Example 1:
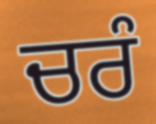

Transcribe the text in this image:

ਚਰੰ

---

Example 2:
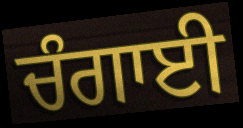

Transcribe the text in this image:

ਚੰਗਾਈ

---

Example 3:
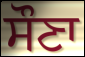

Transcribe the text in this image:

ਸੌਣਾ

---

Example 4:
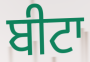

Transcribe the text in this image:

ਬੀਟਾ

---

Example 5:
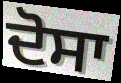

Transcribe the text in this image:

ਦੋਸਾ